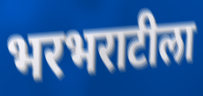
भरभराटीला